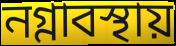
নগ্নাবস্থায়